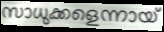
സാധുക്കളെന്നായ്